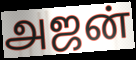
அஜன்